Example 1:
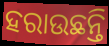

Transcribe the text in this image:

ହରାଉଛନ୍ତି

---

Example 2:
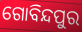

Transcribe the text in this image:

ଗୋବିନ୍ଦପୁର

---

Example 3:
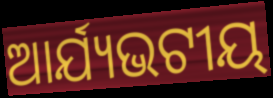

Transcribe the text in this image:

ଆର୍ଯ୍ୟଭଟୀୟ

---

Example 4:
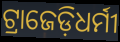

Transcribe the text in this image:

ଟ୍ରାଜେଡ଼ିଧର୍ମୀ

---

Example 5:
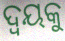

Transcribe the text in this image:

ଦ୍ୱୟକୁ